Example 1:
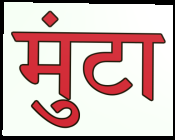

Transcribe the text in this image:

मुंटा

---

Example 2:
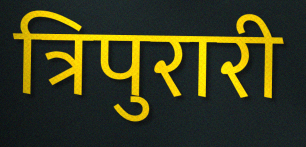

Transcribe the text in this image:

त्रिपुरारी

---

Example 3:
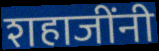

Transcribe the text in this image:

शहाजींनी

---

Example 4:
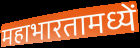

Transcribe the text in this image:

महाभारतामध्यें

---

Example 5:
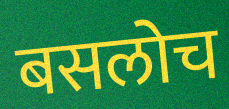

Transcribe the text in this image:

बसलोच